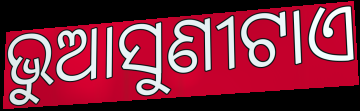
ଭୁଆସୁଣୀଟାଏ